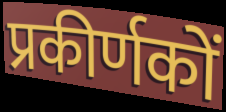
प्रकीर्णकों